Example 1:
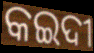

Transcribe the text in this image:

କଇଦୀ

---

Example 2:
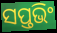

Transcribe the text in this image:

ସପ୍ତଭିଂ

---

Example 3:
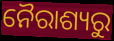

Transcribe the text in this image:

ନୈରାଶ୍ୟରୁ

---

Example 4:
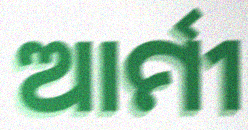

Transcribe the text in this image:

ଆର୍ମୀ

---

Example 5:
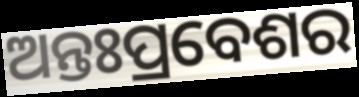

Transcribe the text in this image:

ଅନ୍ତଃପ୍ରବେଶର